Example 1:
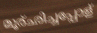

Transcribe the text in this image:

മൂര്ഛിച്ചപ്പോള്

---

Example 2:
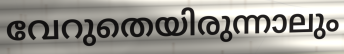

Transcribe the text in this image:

വേറുതെയിരുന്നാലും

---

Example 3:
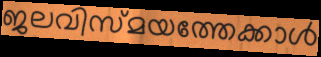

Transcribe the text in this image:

ജലവിസ്മയത്തേക്കാൾ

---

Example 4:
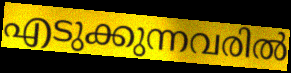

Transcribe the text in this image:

എടുക്കുന്നവരിൽ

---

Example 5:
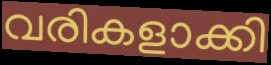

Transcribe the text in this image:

വരികളാക്കി